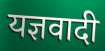
यज्ञवादी